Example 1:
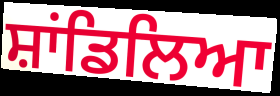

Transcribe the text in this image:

ਸ਼ਾਂਡਿਲਿਆ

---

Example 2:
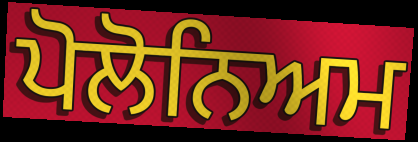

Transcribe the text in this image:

ਪੋਲੋਨਿਅਮ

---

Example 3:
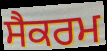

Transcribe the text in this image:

ਸੈਕਰਮ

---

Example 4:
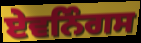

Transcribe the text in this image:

ਏਵਨਿੰਗਸ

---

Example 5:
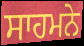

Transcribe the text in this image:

ਸਾਹਮਨੇ